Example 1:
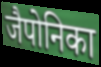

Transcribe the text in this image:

जैपोनिका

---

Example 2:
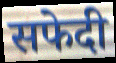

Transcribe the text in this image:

सफेदी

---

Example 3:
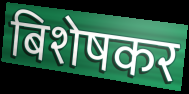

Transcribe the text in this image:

बिशेषकर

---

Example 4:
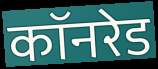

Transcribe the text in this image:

कॉनरेड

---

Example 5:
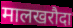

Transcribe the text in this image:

मालखरौदा